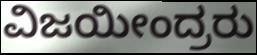
ವಿಜಯೀಂದ್ರರು